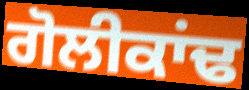
ਗੋਲੀਕਾਂਢ